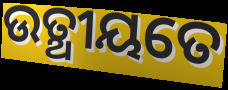
ଉତ୍ଥୀୟତେ